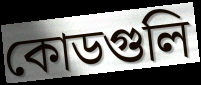
কোডগুলি